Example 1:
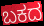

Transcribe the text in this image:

ಬಕದ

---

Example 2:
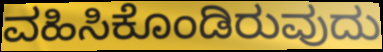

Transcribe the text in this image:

ವಹಿಸಿಕೊಂಡಿರುವುದು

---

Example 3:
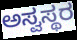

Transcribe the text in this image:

ಅಸ್ವಸ್ಥರ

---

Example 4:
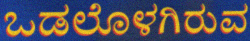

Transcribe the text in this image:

ಒಡಲೊಳಗಿರುವ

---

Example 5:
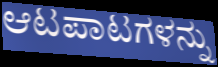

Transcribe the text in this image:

ಆಟಪಾಟಗಳನ್ನು